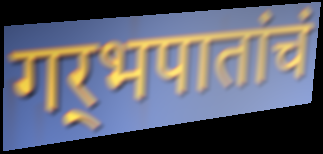
गर्भपातांचं